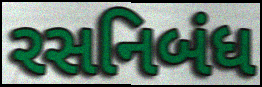
રસનિબંધ